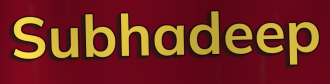
Subhadeep